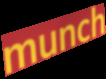
munch